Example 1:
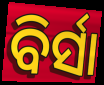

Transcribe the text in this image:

ବିର୍ସା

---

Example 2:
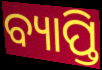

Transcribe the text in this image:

ବ୍ୟାପ୍ତି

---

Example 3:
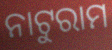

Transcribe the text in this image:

ନାଟୁରାମ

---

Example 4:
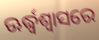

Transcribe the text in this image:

ଊର୍ଦ୍ଧ୍ୱଶ୍ୱାସରେ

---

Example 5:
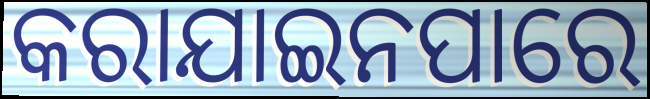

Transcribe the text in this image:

କରାଯାଇନପାରେ